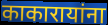
काकारायांना